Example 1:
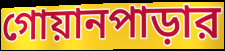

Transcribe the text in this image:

গোয়ানপাড়ার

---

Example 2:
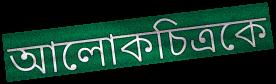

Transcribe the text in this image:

আলোকচিত্রকে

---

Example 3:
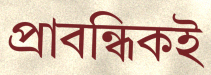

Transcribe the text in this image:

প্রাবন্ধিকই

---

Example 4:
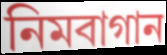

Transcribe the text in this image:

নিমবাগান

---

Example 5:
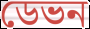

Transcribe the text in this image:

ডেভন